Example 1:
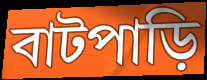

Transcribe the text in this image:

বাটপাড়ি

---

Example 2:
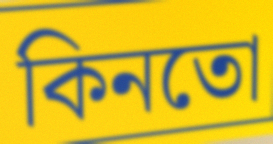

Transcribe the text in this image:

কিনতো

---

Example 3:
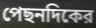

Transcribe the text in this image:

পেছনদিকের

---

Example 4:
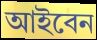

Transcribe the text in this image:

আইবেন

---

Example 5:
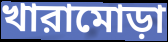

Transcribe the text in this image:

খারামোড়া